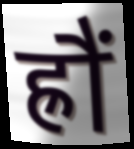
ह्रौं